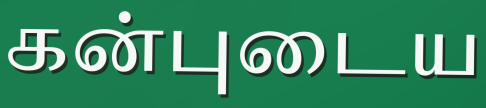
கன்புடைய